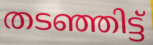
തടഞ്ഞിട്ട്